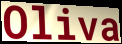
Oliva